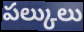
పల్కులు